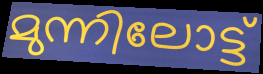
മുന്നിലോട്ട്